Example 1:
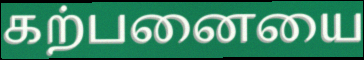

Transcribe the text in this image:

கற்பனையை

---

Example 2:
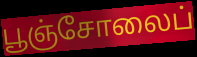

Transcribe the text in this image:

பூஞ்சோலைப்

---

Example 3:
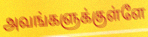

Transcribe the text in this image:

அவங்களுக்குள்ளே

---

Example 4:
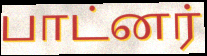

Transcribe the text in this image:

பாட்னர்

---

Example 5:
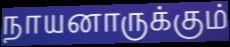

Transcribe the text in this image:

நாயனாருக்கும்